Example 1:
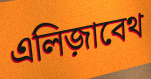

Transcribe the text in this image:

এলিজ়াবেথ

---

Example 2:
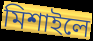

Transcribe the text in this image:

মিশাইলে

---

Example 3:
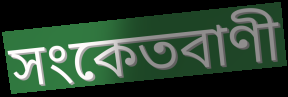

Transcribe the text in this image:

সংকেতবাণী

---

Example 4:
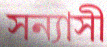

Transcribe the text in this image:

সন্যাসী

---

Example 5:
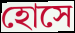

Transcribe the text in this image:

হোসে